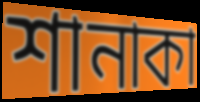
শানাকা